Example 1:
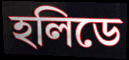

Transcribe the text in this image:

হলিডে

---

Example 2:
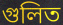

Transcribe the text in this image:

গুলিত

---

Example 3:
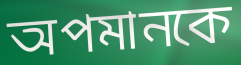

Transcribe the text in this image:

অপমানকে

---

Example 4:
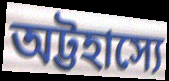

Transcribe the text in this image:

অট্টহাস্যে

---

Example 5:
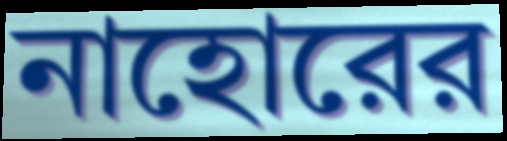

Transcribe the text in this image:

নাহোরের